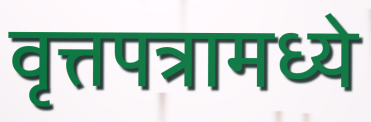
वृत्तपत्रामध्ये